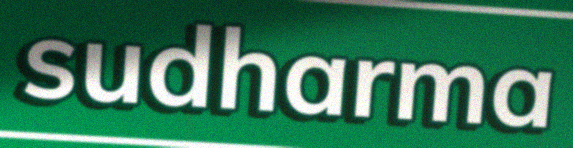
sudharma